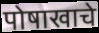
पोषाखाचे